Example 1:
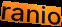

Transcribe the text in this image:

ranio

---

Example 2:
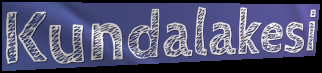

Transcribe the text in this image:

Kundalakesi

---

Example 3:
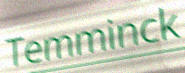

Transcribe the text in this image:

Temminck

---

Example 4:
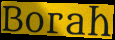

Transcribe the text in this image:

Borah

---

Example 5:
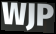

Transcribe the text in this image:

WJP